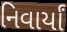
નિવાર્યાં